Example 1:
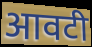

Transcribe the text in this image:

आवटी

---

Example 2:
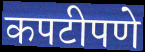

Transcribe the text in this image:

कपटीपणे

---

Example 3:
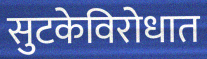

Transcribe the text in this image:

सुटकेविरोधात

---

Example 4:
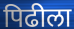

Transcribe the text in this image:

पिढीला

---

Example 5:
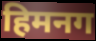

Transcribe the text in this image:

हिमनग